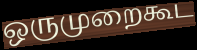
ஒருமுறைகூட